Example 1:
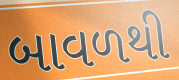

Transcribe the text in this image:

બાવળથી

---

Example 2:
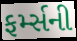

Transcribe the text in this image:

ફર્મ્સની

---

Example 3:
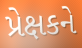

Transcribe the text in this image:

પ્રેક્ષકને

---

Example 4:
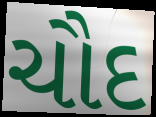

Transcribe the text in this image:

ચૌદ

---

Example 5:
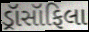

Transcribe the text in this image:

ડ્રૉસૉફિલા